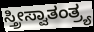
ಸ್ತ್ರೀಸ್ವಾತಂತ್ರ್ಯ